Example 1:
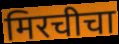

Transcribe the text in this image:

मिरचीचा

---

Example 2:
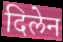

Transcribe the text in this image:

दिलेन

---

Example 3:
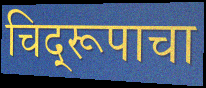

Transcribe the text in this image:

चिद्‌रूपाचा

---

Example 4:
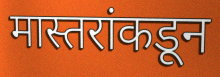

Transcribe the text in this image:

मास्तरांकडून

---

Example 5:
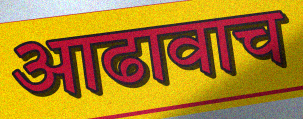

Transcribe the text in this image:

आढावाच